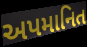
અપમાનિત